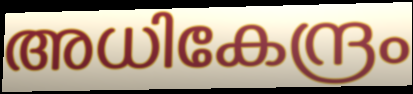
അധികേന്ദ്രം